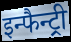
इन्फैन्ट्री